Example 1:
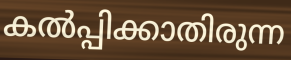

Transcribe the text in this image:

കൽപ്പിക്കാതിരുന്ന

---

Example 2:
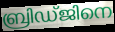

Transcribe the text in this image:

ബ്രിഡ്ജിനെ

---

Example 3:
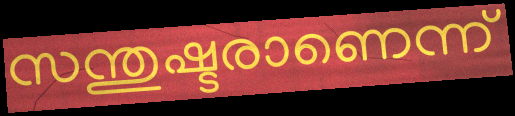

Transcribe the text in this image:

സന്തുഷ്ടരാണെന്ന്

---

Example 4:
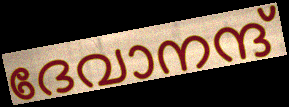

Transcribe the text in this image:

ദേവാനന്ദ്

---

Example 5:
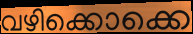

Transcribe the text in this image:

വഴിക്കൊക്കെ